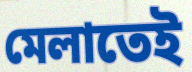
মেলাতেই